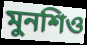
মুনশিও